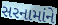
સરનામાંને